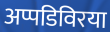
अप्पडिविरया